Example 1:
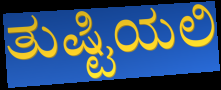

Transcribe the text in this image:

ತುಷ್ಟಿಯಲಿ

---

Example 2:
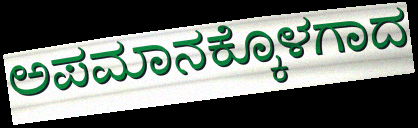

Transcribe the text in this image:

ಅಪಮಾನಕ್ಕೊಳಗಾದ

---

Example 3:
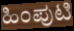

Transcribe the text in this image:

ಹಿಂಪುಟಿ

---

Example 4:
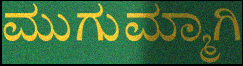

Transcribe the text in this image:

ಮುಗುಮ್ಮಾಗಿ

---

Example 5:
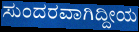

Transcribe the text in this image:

ಸುಂದರವಾಗಿದ್ದೀಯ